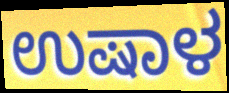
ಉಷಾಳ